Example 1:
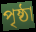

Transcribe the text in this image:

পৃষ্ঠা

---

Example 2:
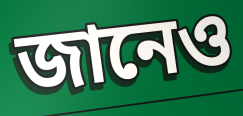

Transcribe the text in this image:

জানেও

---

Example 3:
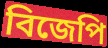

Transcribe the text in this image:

বিজেপি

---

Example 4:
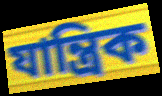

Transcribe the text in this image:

যান্ত্ৰিক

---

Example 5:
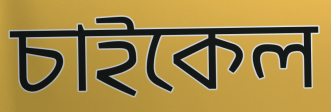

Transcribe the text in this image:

চাইকেল